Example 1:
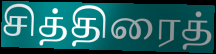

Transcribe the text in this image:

சித்திரைத்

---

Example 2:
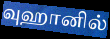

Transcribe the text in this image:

வுஹானில்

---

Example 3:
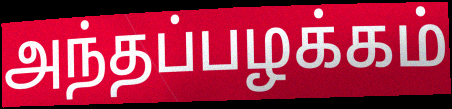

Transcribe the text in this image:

அந்தப்பழக்கம்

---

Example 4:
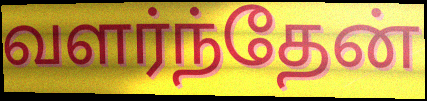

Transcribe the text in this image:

வளர்ந்தேன்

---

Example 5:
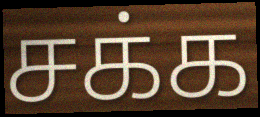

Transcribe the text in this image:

சக்க